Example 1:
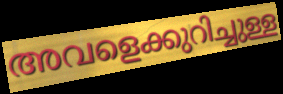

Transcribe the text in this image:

അവളെക്കുറിച്ചുള്ള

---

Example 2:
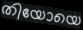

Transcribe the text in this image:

തിയോയെ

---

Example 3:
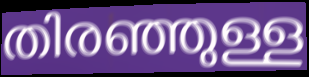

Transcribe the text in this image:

തിരഞ്ഞുള്ള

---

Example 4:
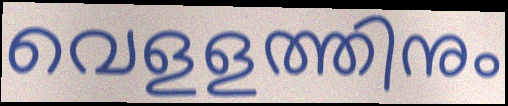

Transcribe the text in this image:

വെളളത്തിനും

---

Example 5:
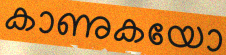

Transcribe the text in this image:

കാണുകയോ